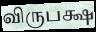
விருபக்ஷ